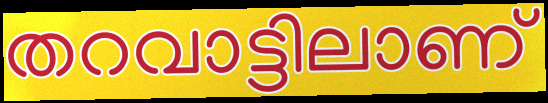
തറവാട്ടിലാണ്